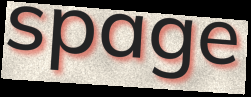
spage